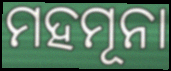
ମହମୂନା